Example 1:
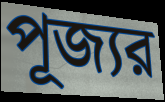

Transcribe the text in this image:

পূজ্যর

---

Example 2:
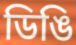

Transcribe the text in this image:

ডিঙি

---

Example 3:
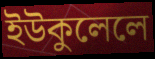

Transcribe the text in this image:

ইউকুলেলে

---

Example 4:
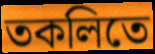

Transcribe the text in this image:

তকলিতে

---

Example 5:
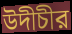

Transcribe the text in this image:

উদীচীর